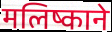
मलिष्काने